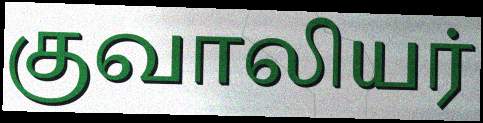
குவாலியர்